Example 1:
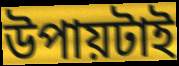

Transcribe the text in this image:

উপায়টাই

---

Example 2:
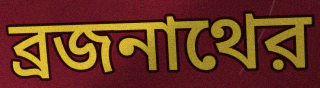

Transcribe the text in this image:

ব্রজনাথের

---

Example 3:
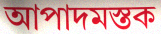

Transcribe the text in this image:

আপাদমস্তক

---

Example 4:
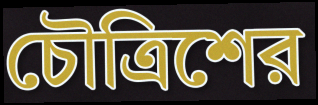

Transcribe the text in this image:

চৌত্রিশের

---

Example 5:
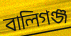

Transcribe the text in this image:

বালিগঞ্জ